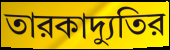
তারকাদ্যুতির